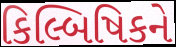
કિલ્બિષિકને